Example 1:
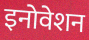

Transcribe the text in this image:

इनोवेशन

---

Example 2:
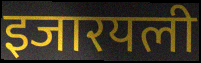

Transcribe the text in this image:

इजारयली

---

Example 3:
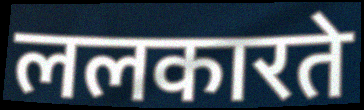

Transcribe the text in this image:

ललकारते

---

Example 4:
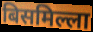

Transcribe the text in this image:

बिसमिल्ला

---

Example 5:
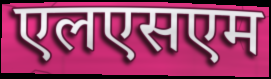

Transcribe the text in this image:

एलएसएम